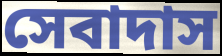
সেবাদাস